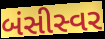
બંસીસ્વર